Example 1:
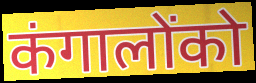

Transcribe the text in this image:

कंगालोंको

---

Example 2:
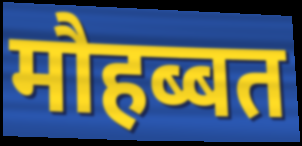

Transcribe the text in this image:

मौहब्बत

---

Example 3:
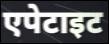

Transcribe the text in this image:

एपेटाइट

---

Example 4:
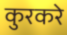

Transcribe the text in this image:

कुरकरे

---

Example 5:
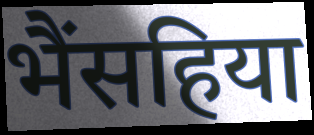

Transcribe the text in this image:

भैंसहिया